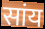
सांय